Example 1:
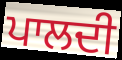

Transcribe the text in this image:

ਪਾਲਦੀ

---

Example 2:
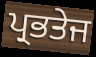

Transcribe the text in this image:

ਪ੍ਰਭਤੇਜ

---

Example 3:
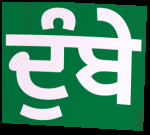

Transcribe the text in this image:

ਦੁੰਬੇ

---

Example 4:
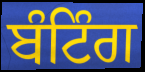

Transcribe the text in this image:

ਬੰਟਿੰਗ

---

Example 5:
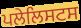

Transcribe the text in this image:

ਪਲੇਲਿਸਟਸ